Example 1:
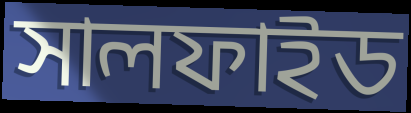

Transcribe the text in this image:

সালফাইড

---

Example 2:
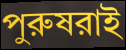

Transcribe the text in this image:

পুরুষরাই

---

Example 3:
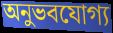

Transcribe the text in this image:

অনুভবযোগ্য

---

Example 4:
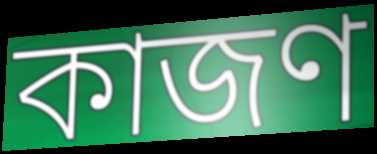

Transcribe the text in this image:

কাজণ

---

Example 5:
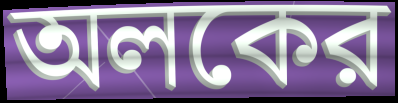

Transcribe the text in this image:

অলকের